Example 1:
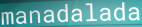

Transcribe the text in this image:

manadalada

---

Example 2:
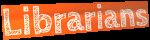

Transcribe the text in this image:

Librarians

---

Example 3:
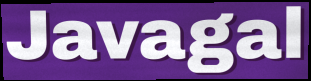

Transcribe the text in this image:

Javagal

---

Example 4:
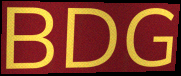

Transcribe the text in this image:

BDG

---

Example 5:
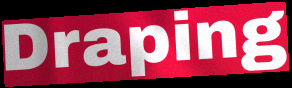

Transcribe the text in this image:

Draping